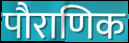
पौराणिक